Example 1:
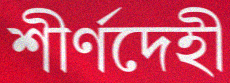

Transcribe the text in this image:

শীর্ণদেহী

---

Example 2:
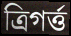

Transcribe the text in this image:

ত্রিগর্ত্ত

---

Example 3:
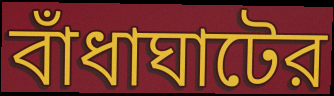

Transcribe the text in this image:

বাঁধাঘাটের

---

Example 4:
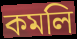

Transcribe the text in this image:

কমলি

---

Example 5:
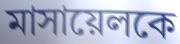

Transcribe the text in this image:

মাসায়েলকে